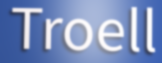
Troell